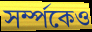
সৰ্ম্পকেও